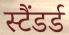
स्टैंडर्ड